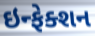
ઇન્ફેક્શન